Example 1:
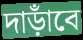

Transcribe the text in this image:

দাড়াঁবে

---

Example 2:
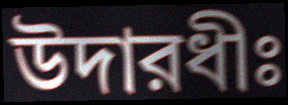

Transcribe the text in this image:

উদারধীঃ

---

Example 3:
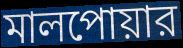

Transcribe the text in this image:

মালপোয়ার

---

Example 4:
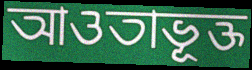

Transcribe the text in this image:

আওতাভূক্ত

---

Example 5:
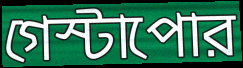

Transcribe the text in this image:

গেস্টাপোর